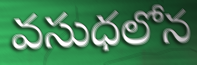
వసుధలోన